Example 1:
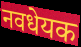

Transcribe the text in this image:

नवधेयक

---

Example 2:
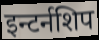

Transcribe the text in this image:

इन्टर्नशिप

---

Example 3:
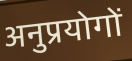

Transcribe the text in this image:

अनुप्रयोगों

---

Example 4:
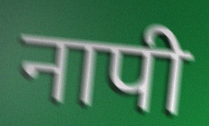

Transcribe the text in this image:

नापी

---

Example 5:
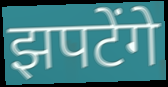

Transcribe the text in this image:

झपटेंगे